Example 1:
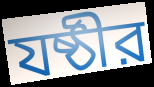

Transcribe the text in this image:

যষ্ঠীর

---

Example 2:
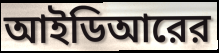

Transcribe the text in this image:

আইডিআরের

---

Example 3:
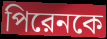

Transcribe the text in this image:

পিরেনকে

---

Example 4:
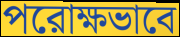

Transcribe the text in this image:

পরোক্ষভাবে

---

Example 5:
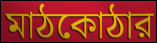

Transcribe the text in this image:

মাঠকোঠার